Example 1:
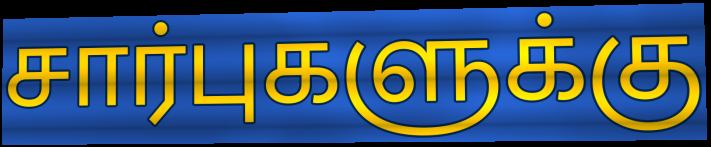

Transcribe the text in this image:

சார்புகளுக்கு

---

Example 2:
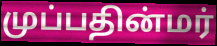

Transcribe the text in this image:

முப்பதின்மர்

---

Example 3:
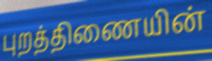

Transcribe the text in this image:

புறத்திணையின்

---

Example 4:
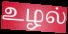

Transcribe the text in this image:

உழல்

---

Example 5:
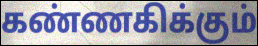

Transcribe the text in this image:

கண்ணகிக்கும்